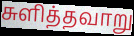
சுளித்தவாறு